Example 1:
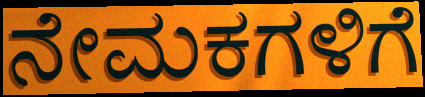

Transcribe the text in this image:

ನೇಮಕಗಳಿಗೆ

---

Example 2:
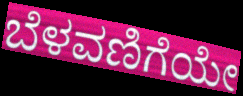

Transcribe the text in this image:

ಬೆಳವಣಿಗೆಯೇ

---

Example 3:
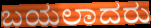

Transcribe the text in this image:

ಬಯಲಾದರು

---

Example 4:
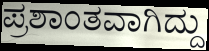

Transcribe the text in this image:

ಪ್ರಶಾಂತವಾಗಿದ್ದು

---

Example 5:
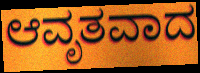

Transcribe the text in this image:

ಆವೃತವಾದ